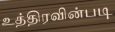
உத்திரவின்படி